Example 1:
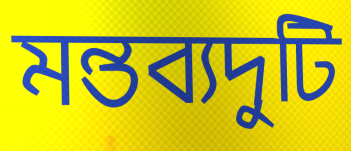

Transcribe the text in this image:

মন্তব্যদুটি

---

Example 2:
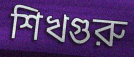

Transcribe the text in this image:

শিখগুরু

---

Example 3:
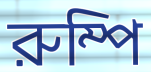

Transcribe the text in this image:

রুম্পি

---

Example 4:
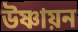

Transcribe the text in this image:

উষ্ণায়ন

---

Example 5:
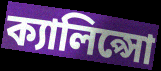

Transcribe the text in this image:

ক্যালিপ্সো